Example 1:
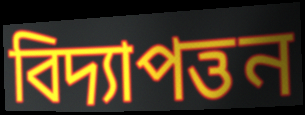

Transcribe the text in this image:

বিদ্যাপত্তন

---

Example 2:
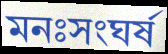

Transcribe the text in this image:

মনঃসংঘর্ষ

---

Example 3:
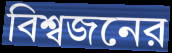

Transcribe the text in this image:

বিশ্বজনের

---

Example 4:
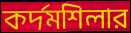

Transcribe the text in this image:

কর্দমশিলার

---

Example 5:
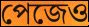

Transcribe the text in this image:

পেজেও